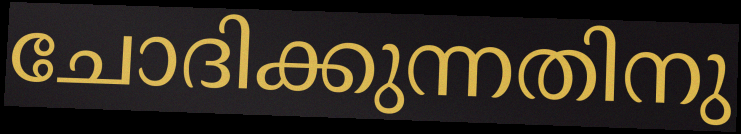
ചോദിക്കുന്നതിനു